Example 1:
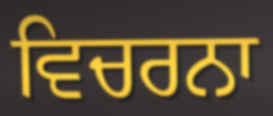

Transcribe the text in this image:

ਵਿਚਰਨਾ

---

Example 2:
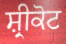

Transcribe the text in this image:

ਸ਼੍ਰੀਕੋਟ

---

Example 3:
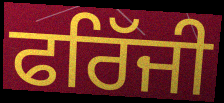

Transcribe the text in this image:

ਫਰਿੱਜੀ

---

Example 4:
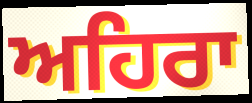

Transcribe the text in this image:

ਅਹਿਰਾ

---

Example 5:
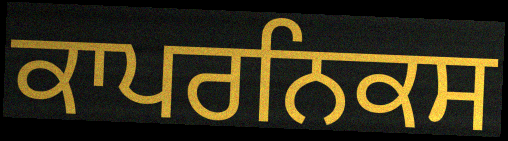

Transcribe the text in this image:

ਕਾਪਰਨਿਕਸ